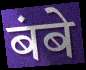
बंबे